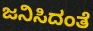
ಜನಿಸಿದಂತೆ